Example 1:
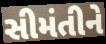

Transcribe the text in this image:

સીમંતીને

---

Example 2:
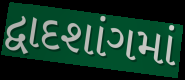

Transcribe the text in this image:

દ્વાદશાંગમાં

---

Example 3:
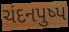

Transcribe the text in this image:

ચંદનપુષ્પ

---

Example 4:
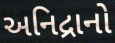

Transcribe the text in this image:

અનિદ્રાનો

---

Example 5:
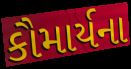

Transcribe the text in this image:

કૌમાર્યના